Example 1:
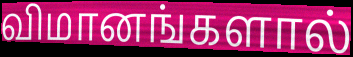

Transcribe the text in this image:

விமானங்களால்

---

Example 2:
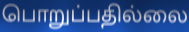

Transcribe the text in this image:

பொறுப்பதில்லை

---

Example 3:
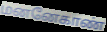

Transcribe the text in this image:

மனனேகாண்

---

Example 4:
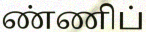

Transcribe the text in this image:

ண்ணிப்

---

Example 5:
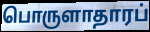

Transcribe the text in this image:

பொருளாதாரப்